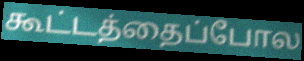
கூட்டத்தைப்போல